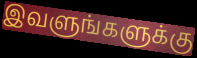
இவளுங்களுக்கு